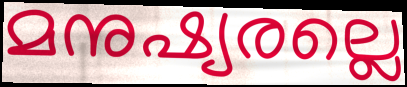
മനുഷ്യരല്ലെ